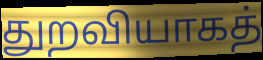
துறவியாகத்